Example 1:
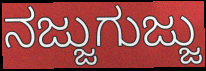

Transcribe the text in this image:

ನಜ್ಜುಗುಜ್ಜು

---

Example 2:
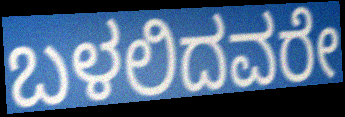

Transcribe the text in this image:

ಬಳಲಿದವರೇ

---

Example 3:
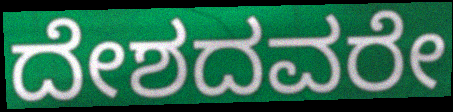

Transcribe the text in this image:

ದೇಶದವರೇ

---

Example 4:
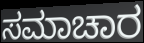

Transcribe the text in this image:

ಸಮಾಚಾರ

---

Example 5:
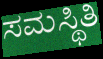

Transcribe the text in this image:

ಸಮಸ್ಥಿತಿ